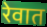
रेवात